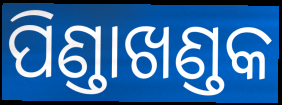
ପିଣ୍ଡାଖଣ୍ଡକ